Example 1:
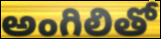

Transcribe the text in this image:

అంగిలితో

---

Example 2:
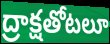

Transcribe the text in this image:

ద్రాక్షతోటలూ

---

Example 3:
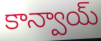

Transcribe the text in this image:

కాన్వాయ్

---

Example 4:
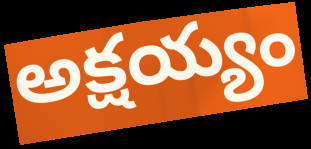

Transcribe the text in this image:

అక్షయ్యం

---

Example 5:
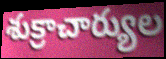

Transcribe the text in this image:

శుక్రాచార్యుల